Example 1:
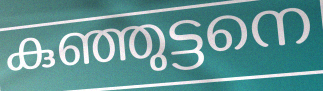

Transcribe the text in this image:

കുഞ്ഞുട്ടനെ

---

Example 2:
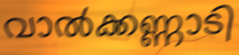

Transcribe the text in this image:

വാൽക്കണ്ണാടി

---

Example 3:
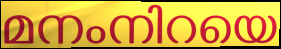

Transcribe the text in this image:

മനംനിറയെ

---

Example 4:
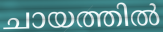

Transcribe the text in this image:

ചായത്തിൽ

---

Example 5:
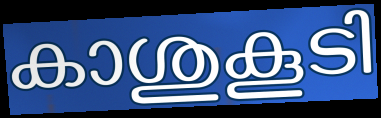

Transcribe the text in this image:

കാശുകൂടി